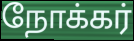
நோக்கர்